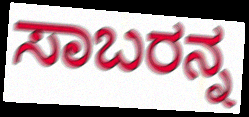
ಸಾಬರನ್ನ